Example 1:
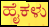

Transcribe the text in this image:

ಹೈಕಳು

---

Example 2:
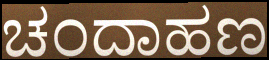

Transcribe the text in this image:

ಚಂದಾಹಣ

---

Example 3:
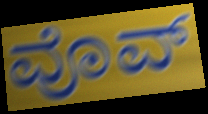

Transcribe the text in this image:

ವೊವ್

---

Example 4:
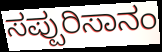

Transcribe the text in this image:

ಸಪ್ಪುರಿಸಾನಂ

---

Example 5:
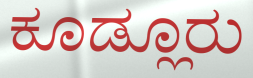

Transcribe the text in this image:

ಕೂಡ್ಲೂರು